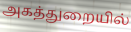
அகத்துறையில்